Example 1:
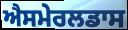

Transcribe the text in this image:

ਐਸਮੇਰਲਡਾਸ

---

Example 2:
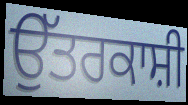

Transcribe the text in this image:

ਉੱਤਰਕਾਸ਼ੀ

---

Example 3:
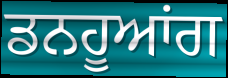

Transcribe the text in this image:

ਡਨਹੂਆਂਗ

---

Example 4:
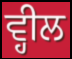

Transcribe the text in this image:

ਵ੍ਹੀਲ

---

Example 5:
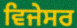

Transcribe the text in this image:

ਵਿਜੇਸਰ